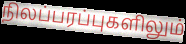
நிலப்பரப்புகளிலும்